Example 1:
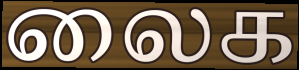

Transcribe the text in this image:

லைக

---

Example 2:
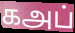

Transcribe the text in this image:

கஅப்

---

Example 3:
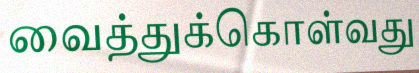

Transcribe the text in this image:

வைத்துக்கொள்வது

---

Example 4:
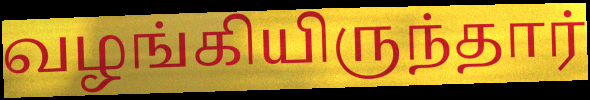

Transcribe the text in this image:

வழங்கியிருந்தார்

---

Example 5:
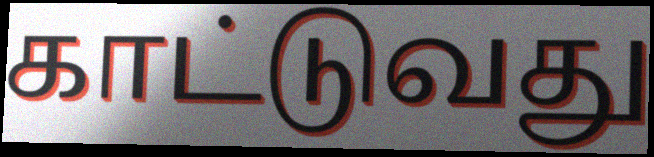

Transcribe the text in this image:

காட்டுவது